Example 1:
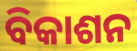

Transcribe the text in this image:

ବିକାଶନ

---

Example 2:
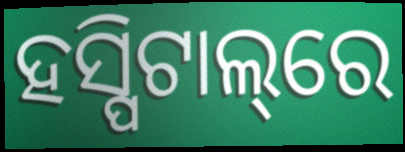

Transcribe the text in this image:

ହସ୍ପିଟାଲ୍‌ରେ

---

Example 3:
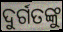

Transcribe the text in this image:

ଦୁର୍ଗତଙ୍କୁ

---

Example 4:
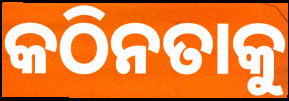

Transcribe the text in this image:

କଠିନତାକୁ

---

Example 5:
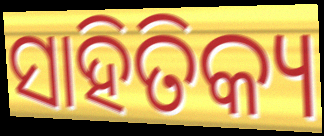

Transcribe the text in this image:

ସାହିତିକ୍ୟ